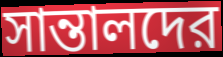
সান্তালদের